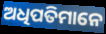
ଅଧିପତିମାନେ